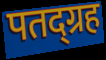
पतद्ग्रह